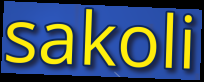
sakoli